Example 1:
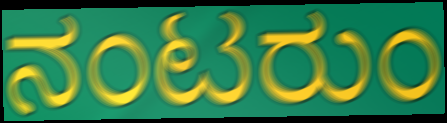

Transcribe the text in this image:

ನಂಟರುಂ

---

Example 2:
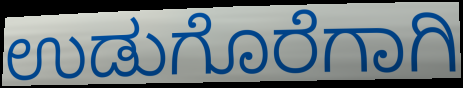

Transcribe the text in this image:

ಉಡುಗೊರೆಗಾಗಿ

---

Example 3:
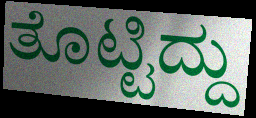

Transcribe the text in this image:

ತೊಟ್ಟಿದ್ದು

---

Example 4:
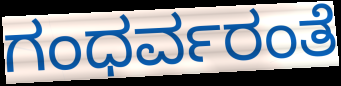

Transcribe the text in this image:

ಗಂಧರ್ವರಂತೆ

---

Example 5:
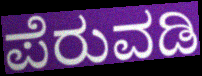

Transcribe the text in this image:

ಪೆರುವಡಿ